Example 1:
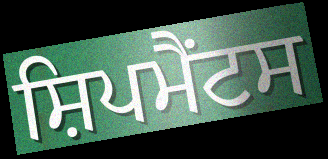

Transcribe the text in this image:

ਸ਼ਿਪਮੈਂਟਸ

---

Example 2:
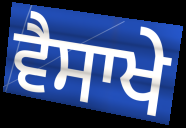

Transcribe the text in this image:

ਵੈਸਾਖੇ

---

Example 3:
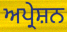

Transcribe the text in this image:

ਅਪ੍ਰੇਸ਼ਨ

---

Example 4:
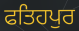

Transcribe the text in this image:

ਫਤਿਹਪੁਰ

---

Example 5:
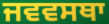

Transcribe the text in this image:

ਜਵਵਸਥਾ